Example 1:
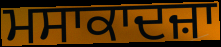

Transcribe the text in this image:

ਮਸਾਕਾਦਜ਼ਾ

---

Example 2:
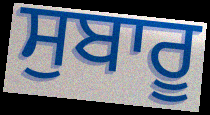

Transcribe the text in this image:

ਸੁਬਾਰੂ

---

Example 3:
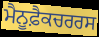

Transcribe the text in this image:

ਮੈਨੂਫ਼ੈਕਚਰਰਸ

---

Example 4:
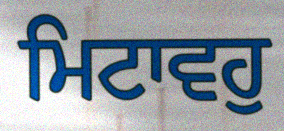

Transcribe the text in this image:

ਮਿਟਾਵਹੁ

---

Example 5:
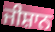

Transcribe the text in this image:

ਜੀਸ਼ਾਨ